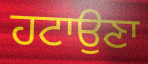
ਹਟਾਉਣਾ